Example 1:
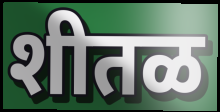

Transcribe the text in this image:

शीतळ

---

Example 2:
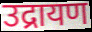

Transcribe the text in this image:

उद्रायण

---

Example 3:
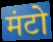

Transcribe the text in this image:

मंटो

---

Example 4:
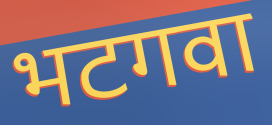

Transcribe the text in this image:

भटगवा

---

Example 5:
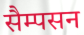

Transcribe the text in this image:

सैम्पसन